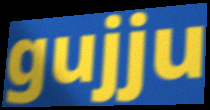
gujju